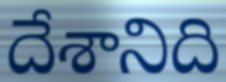
దేశానిది